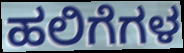
ಹಲಿಗೆಗಳ